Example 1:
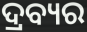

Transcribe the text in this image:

ଦ୍ରବ୍ୟର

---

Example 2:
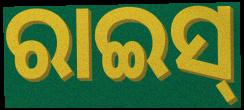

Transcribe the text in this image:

ରାଇସ୍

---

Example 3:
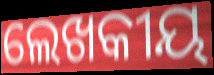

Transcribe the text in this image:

ଲେଖକୀୟ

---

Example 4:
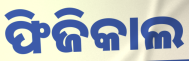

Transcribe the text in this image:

ଫିଜିକାଲ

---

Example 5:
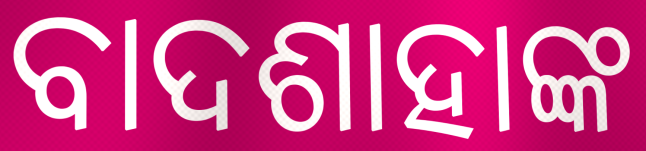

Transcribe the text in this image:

ବାଦଶାହାଙ୍କ